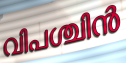
വിപശ്ചിൻ